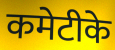
कमेटीके